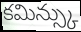
కమిన్స్కు